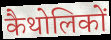
कैथोलिकों